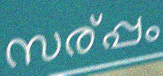
സര്പ്പം